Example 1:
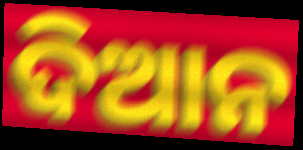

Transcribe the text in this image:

ଦିଆନ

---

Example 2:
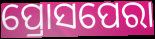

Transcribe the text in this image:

ପ୍ରୋସପେରା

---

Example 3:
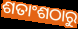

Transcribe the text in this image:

ଶତାଂଶଠାରୁ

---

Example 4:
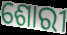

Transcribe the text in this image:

ଶୋରୀ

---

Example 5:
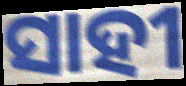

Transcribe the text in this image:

ସାହୀ